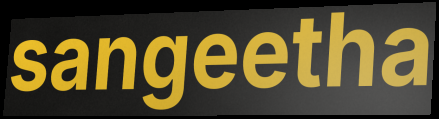
sangeetha